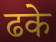
ढके